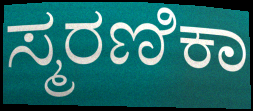
ಸ್ಮರಣಿಕಾ